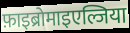
फ़ाइब्रोमाइएल्जिया